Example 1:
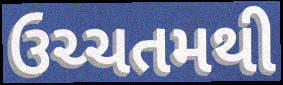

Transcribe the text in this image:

ઉચ્ચતમથી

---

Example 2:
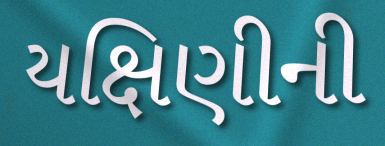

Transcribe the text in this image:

યક્ષિણીની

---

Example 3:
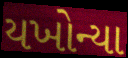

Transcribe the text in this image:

યખોન્યા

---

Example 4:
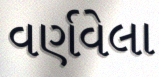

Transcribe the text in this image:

વર્ણવેલા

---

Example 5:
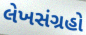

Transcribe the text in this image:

લેખસંગ્રહો